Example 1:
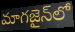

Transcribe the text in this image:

మాగజైన్‌లో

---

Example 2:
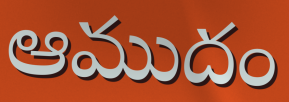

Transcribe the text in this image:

ఆముదం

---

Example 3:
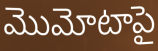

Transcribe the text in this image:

మొమోటాపై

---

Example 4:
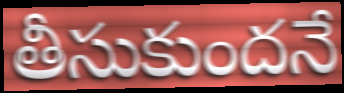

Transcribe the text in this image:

తీసుకుందనే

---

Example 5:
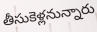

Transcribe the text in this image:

తీసుకెళ్లనున్నారు